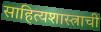
साहित्यशास्त्राची